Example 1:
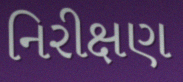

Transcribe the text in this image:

નિરીક્ષણ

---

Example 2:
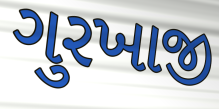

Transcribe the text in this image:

ગુરખાજી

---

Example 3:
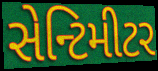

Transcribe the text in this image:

સેન્ટિમીટર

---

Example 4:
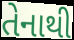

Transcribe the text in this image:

તેનાથી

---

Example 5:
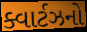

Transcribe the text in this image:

ક્વાર્ટઝનો